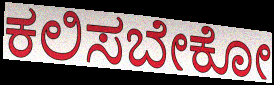
ಕಲಿಸಬೇಕೋ